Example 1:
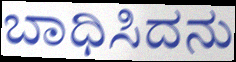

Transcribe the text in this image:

ಬಾಧಿಸಿದನು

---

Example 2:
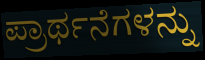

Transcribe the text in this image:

ಪ್ರಾರ್ಥನೆಗಳನ್ನು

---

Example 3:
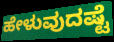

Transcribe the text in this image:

ಹೇಳುವುದಷ್ಟೆ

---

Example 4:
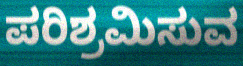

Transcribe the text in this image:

ಪರಿಶ್ರಮಿಸುವ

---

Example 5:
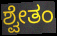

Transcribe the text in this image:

ಶ್ವೇತಂ